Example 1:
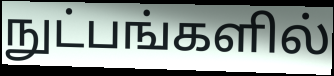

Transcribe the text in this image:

நுட்பங்களில்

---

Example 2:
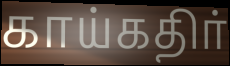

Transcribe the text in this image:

காய்கதிர்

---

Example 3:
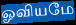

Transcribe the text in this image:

ஓவியமே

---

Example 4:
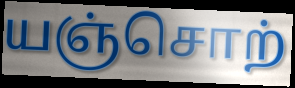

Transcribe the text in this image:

யஞ்சொற்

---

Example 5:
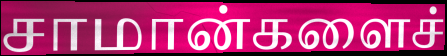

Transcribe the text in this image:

சாமான்களைச்